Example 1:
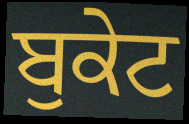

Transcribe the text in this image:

ਬੁਕੇਟ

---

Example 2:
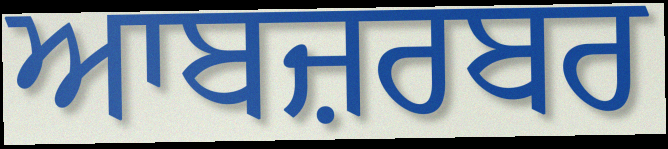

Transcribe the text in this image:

ਆਬਜ਼ਰਬਰ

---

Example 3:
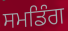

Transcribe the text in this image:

ਸਮਡਿੰਗ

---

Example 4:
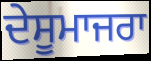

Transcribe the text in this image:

ਦੇਸੂਮਾਜਰਾ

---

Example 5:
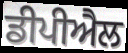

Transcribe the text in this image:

ਡੀਪੀਐਲ